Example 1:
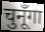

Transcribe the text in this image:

चुनूँगा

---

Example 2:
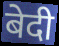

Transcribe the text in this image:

बेदी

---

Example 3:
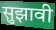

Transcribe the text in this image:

सुझावी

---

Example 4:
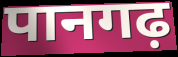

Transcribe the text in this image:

पानगढ़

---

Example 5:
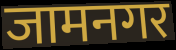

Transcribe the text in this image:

जामनगर